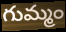
గుమ్మం